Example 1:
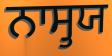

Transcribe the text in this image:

ਨਾਸ੍ਤਯ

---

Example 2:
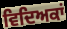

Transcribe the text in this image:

ਵਿਦਿਅਕਾਂ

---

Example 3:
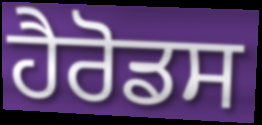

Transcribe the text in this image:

ਹੈਰੋਡਸ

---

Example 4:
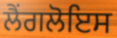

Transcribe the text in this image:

ਲੈਂਗਲੋਇਸ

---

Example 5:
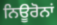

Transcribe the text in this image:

ਨਿਊਰੋਨਾਂ